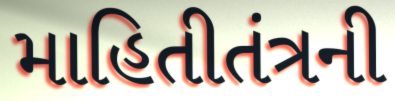
માહિતીતંત્રની